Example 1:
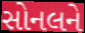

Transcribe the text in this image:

સોનલને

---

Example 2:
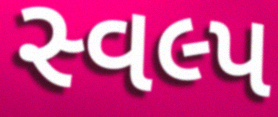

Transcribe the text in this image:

સ્વલ્પ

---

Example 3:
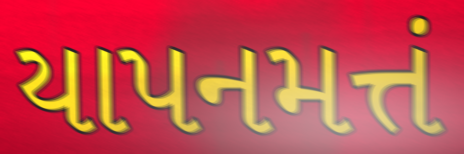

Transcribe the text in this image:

યાપનમત્તં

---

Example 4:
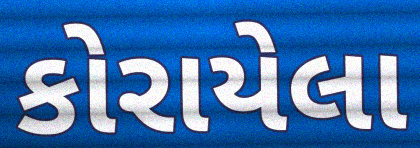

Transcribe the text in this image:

કોરાયેલા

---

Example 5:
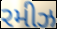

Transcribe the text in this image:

રમીઝ